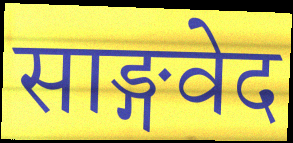
साङ्गवेद